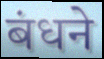
बंधने